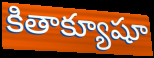
కితాక్యూషూ